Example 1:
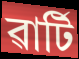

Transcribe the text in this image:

ৱাৰ্টি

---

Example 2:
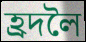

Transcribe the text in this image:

হ্ৰদলৈ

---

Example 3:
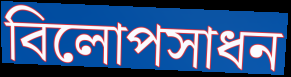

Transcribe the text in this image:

বিলোপসাধন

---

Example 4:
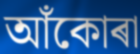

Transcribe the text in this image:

আঁকোৰা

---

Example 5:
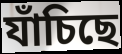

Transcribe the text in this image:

যাঁচিছে